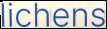
lichens